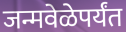
जन्मवेळेपर्यंत